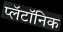
प्लॅटॉनिक